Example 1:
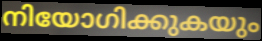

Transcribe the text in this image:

നിയോഗിക്കുകയും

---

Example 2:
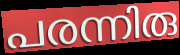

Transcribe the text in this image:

പരന്നിരു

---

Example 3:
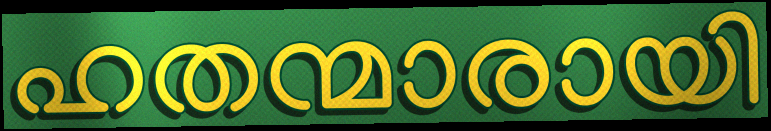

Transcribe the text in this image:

ഹതന്മാരായി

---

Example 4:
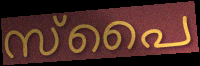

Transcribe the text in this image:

സ്പൈ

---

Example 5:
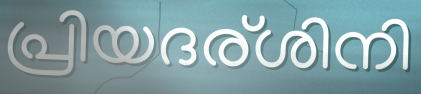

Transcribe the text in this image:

പ്രിയദര്ശിനി